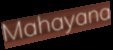
Mahayana